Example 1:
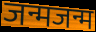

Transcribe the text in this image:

जन्मजन्म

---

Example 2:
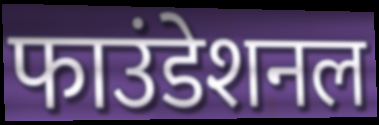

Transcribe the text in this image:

फाउंडेशनल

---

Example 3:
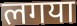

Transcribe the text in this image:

लगया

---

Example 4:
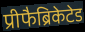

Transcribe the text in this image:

प्रीफैब्रिकेटेड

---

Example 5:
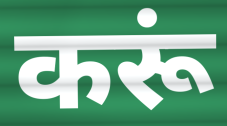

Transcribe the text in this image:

करूं